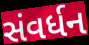
સંવર્ધન